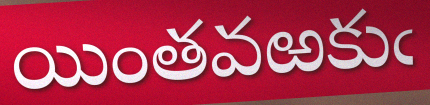
యింతవఱకుఁ